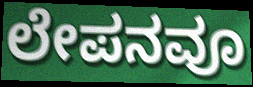
ಲೇಪನವೂ